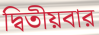
দ্বিতীয়বার